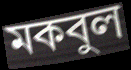
মকবুল